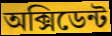
অক্সিডেন্ট